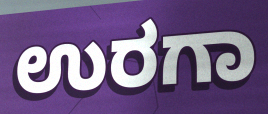
ಉರಗಾ